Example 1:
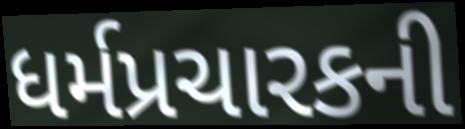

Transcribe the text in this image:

ધર્મપ્રચારકની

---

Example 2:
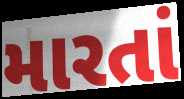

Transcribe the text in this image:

મારતાં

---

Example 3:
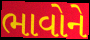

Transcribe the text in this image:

ભાવોને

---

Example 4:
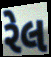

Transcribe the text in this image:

રેલ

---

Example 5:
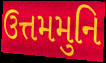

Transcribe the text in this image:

ઉત્તમમુનિ